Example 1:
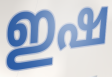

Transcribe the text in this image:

ഇഷ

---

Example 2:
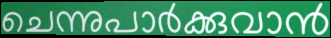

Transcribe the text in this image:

ചെന്നുപാർക്കുവാൻ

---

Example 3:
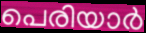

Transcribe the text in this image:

പെരിയാർ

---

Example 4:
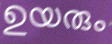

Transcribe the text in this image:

ഉയരും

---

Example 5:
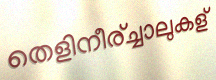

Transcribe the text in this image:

തെളിനീര്ച്ചാലുകള്